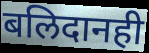
बलिदानही